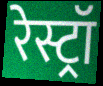
रेस्ट्रॉ